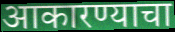
आकारण्याचा